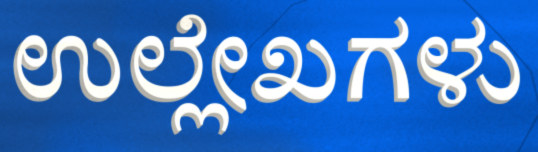
ಉಲ್ಲೇಖಗಳು